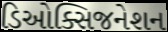
ડિઓક્સિજનેશન